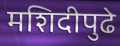
मशिदीपुढे